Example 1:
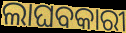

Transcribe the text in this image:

ଲାଘବକାରୀ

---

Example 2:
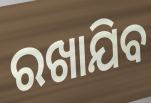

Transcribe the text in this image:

ରଖାଯିବ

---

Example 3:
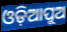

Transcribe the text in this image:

ଓଡ଼ିଆପୁଅ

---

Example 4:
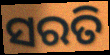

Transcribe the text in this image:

ସରତି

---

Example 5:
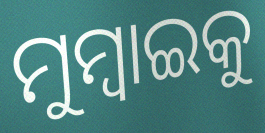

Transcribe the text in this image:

ମୁମ୍ବାଇକୁ